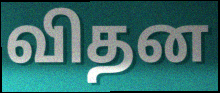
விதன